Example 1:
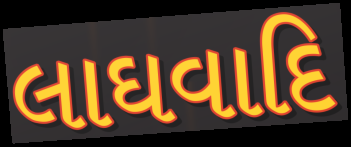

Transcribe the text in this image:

લાઘવાદિ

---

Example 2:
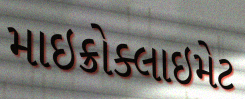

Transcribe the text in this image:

માઇક્રોક્લાઇમેટ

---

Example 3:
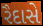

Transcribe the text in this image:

રૈદાસે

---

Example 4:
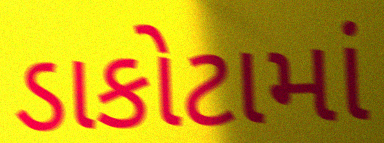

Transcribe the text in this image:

ડાકોટામાં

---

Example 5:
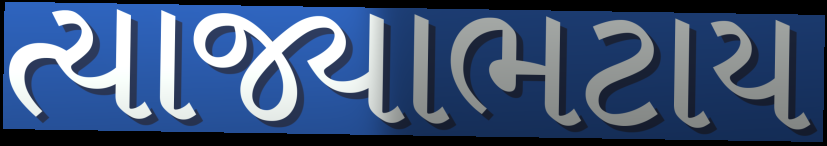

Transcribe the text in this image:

ત્યાજ્યાભટાય